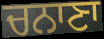
ਚਨਾਣਾ